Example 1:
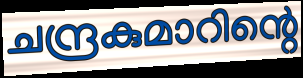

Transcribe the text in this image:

ചന്ദ്രകുമാറിന്റെ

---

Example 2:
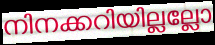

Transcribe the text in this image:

നിനക്കറിയില്ലല്ലോ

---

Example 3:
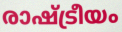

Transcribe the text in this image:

രാഷ്ട്രീയം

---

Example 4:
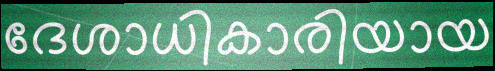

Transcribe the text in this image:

ദേശാധികാരിയായ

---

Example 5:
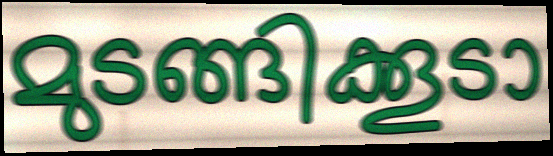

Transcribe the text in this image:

മുടങ്ങിക്കൂടാ